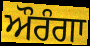
ਔਰੰਗਾ